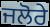
ਜਲੋਰੇ